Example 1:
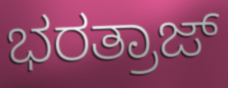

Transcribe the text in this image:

ಭರತ್ರಾಜ್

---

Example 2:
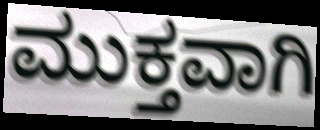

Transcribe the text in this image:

ಮುಕ್ತವಾಗಿ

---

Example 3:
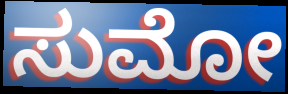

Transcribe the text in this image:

ಸುಮೋ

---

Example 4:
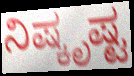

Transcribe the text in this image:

ನಿಷ್ಕೃಷ್ಟ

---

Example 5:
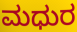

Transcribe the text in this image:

ಮಧುರ